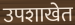
उपशाखेत